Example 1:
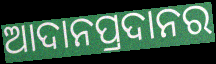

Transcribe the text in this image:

ଆଦାନପ୍ରଦାନର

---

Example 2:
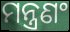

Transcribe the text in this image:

ମନ୍ତ୍ରଣଂ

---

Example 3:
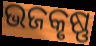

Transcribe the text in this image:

ଭଜକୃଷ୍ଣ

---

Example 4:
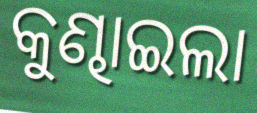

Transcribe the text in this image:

କୁଣ୍ଢାଇଲା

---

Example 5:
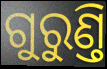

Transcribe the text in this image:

ଗୁରୁଣ୍ତି